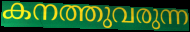
കനത്തുവരുന്ന